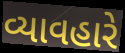
વ્યાવહારે